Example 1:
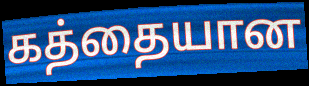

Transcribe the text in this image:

கத்தையான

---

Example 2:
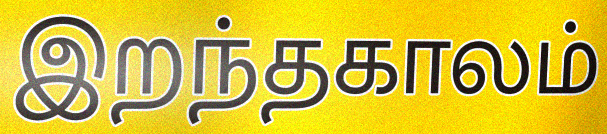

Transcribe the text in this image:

இறந்தகாலம்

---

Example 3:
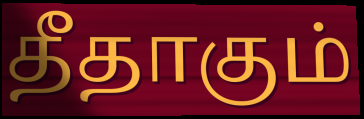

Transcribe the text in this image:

தீதாகும்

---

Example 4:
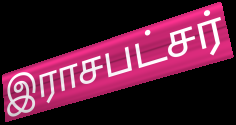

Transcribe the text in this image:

இராசபட்சர்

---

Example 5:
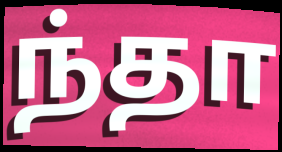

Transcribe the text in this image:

ந்தா